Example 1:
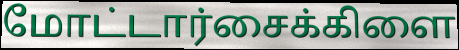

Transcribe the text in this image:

மோட்டார்சைக்கிளை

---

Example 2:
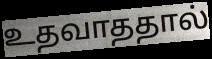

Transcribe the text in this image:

உதவாததால்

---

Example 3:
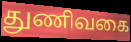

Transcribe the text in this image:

துணிவகை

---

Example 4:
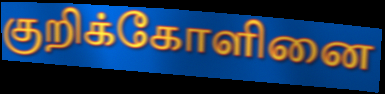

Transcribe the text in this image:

குறிக்கோளினை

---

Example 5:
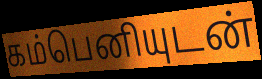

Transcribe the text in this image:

கம்பெனியுடன்